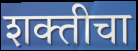
शक्तीचा